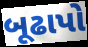
બૂઢાપો